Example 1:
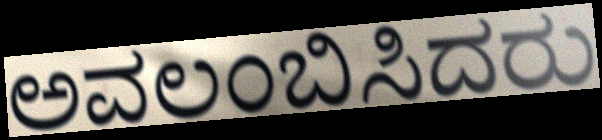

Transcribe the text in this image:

ಅವಲಂಬಿಸಿದರು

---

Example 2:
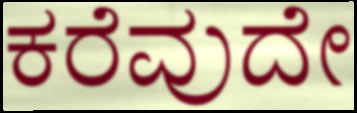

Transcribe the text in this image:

ಕರೆವುದೇ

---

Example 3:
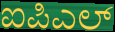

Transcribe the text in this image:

ಐಪಿಎಲ್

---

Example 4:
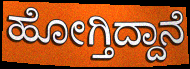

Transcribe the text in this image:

ಹೋಗ್ತಿದ್ದಾನೆ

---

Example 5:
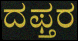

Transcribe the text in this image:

ದಫ್ತರ